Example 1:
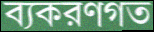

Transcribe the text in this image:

ব্যকরণগত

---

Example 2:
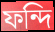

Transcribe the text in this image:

ফন্দি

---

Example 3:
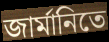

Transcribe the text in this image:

জার্মানিতে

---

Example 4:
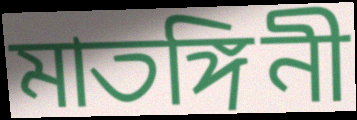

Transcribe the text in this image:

মাতঙ্গিনী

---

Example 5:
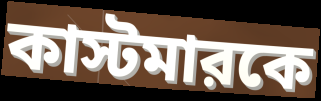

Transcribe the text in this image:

কাস্টমারকে